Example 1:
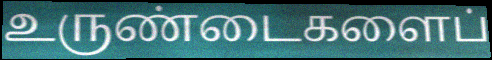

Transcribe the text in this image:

உருண்டைகளைப்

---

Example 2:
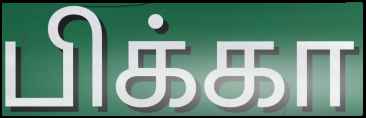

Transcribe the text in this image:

பிக்கா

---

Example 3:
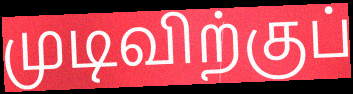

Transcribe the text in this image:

முடிவிற்குப்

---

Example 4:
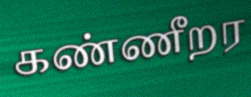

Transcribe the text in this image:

கண்ணீறர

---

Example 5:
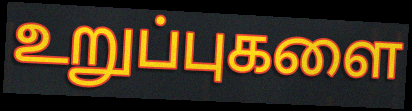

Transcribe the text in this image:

உறுப்புகளை